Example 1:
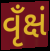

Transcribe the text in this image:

વૃઁક્ષં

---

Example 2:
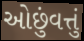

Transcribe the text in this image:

ઓછુંવત્તું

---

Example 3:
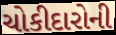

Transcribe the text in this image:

ચોકીદારોની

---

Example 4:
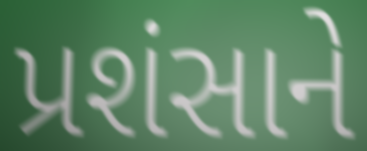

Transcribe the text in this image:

પ્રશંસાને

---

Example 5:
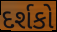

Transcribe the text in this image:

દર્શકો